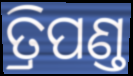
ତ୍ରିପଣ୍ଡ